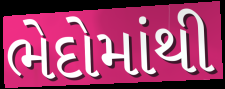
ભેદોમાંથી